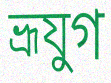
ভ্রূযুগ